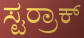
ಸ್ಟರ್ರಾಕ್